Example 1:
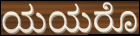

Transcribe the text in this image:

ಯಯರೊ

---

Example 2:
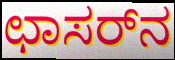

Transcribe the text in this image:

ಛಾಸರ್‌ನ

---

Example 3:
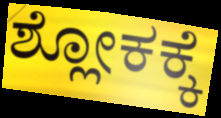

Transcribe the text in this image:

ಶ್ಲೋಕಕ್ಕೆ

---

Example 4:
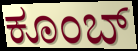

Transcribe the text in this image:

ಕೂಂಬ್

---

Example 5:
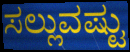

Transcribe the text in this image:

ಸಲ್ಲುವಷ್ಟು